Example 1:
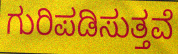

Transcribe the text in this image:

ಗುರಿಪಡಿಸುತ್ತವೆ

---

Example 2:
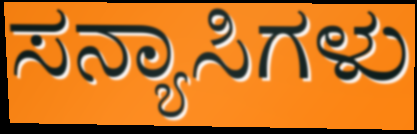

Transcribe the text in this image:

ಸನ್ಯಾಸಿಗಳು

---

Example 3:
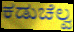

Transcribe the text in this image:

ಕಡುಚೆಲ್ವ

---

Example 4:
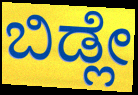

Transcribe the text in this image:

ಬಿಡ್ಲೇ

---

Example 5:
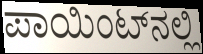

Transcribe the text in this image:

ಪಾಯಿಂಟ್‌ನಲ್ಲಿ